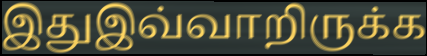
இதுஇவ்வாறிருக்க